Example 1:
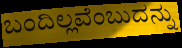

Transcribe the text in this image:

ಬಂದಿಲ್ಲವೆಂಬುದನ್ನು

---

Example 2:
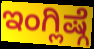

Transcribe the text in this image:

ಇಂಗ್ಲಿಷ್ಗೆ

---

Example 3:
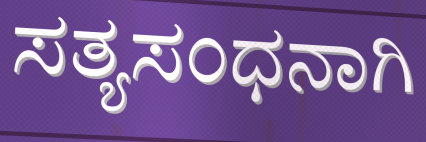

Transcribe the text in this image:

ಸತ್ಯಸಂಧನಾಗಿ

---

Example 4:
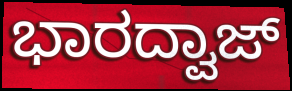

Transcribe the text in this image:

ಭಾರದ್ವಾಜ್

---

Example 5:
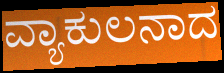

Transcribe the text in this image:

ವ್ಯಾಕುಲನಾದ